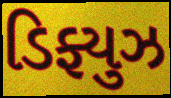
ડિફ્યુઝ